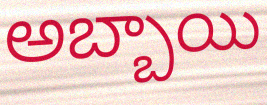
అబ్బాయి